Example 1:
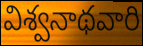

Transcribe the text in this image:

విశ్వనాథవారి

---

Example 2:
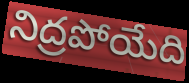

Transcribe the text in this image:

నిద్రపోయేది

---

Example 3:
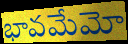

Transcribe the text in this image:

భావమేమో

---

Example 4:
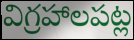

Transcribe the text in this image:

విగ్రహాలపట్ల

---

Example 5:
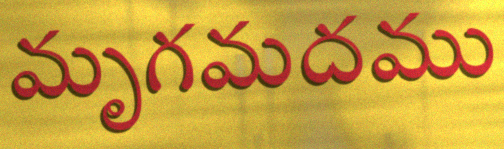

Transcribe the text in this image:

మృగమదము